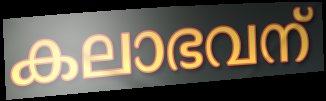
കലാഭവന്